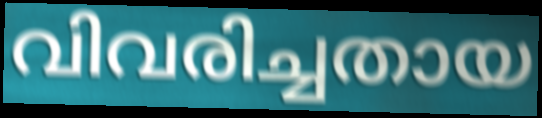
വിവരിച്ചതായ